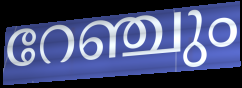
റേഞ്ചും